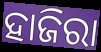
ହାଜିରା